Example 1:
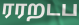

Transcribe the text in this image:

ரரறடப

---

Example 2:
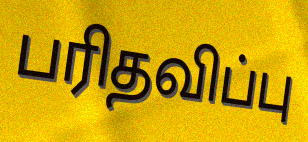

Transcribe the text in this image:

பரிதவிப்பு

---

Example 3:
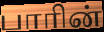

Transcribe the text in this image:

பாரின்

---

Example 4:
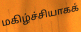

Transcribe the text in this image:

மகிழ்ச்சியாகக்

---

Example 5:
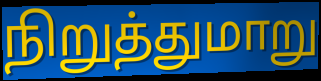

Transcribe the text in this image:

நிறுத்துமாறு